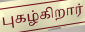
புகழ்கிறார்